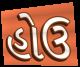
હોઉ